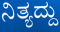
ನಿತ್ಯದ್ದು